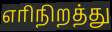
எரிநிறத்து